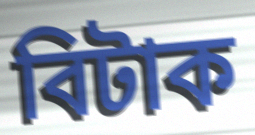
বিটাক